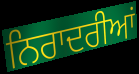
ਨਿਰਾਦਰੀਆਂ